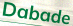
Dabade